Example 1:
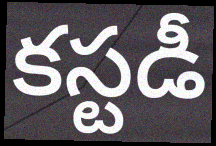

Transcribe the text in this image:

కస్టడీ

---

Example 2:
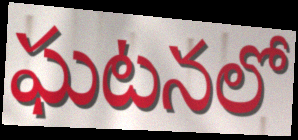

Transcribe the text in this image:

ఘటనలో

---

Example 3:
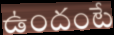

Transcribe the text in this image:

ఉందంటే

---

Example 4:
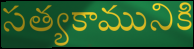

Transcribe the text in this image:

సత్యకామునికి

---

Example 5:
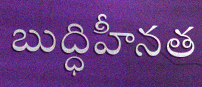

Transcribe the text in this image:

బుద్ధిహీనత